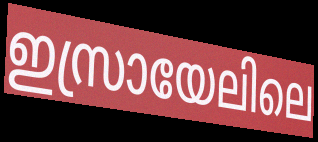
ഇസ്രായേലിലെ